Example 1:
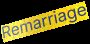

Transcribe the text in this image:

Remarriage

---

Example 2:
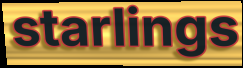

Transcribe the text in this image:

starlings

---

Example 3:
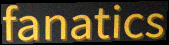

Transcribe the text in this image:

fanatics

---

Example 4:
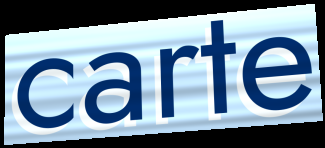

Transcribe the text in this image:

carte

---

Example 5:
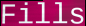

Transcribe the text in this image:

Fills